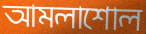
আমলাশোল